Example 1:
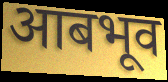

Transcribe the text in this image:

आबभूव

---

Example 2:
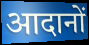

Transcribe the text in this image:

आदानों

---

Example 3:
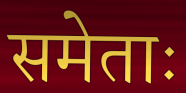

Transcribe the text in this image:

समेताः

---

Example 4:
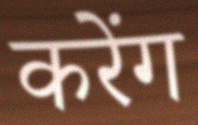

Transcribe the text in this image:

करेंग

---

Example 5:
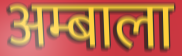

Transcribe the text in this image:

अम्‍बाला